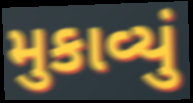
મુકાવ્યું